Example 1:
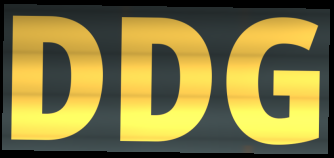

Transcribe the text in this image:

DDG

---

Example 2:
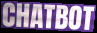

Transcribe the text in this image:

CHATBOT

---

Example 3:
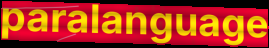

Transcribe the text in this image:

paralanguage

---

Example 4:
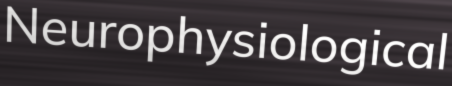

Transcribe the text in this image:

Neurophysiological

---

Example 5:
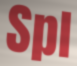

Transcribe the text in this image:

Spl